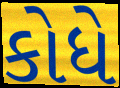
કોધે